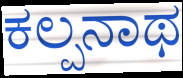
ಕಲ್ಪನಾಥ